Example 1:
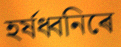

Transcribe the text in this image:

হৰ্ষধ্বনিৰে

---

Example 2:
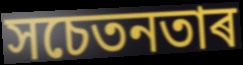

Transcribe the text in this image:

সচেতনতাৰ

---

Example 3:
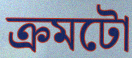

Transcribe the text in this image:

ক্ৰমটো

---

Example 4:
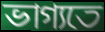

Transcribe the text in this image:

ভাগ্যতে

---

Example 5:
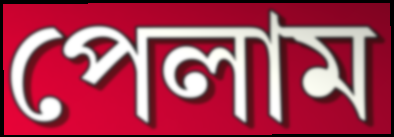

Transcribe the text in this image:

পেলাম